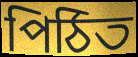
পিঠিত